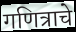
गणित्राचे